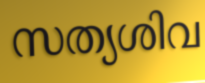
സത്യശിവ